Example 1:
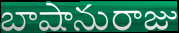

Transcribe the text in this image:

బాషానురాజు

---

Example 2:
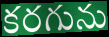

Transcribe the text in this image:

కరగును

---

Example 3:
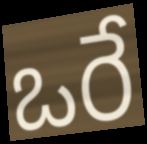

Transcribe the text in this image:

ఒరే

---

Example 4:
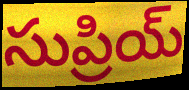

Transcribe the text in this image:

సుప్రియ్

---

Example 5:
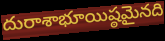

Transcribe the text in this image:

దురాశాభూయిష్ఠమైనది